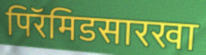
पिरॅमिडसारखा